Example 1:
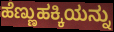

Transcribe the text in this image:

ಹೆಣ್ಣುಹಕ್ಕಿಯನ್ನು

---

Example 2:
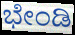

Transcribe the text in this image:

ಭೇಂಡಿ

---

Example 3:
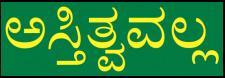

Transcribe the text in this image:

ಅಸ್ತಿತ್ವವಲ್ಲ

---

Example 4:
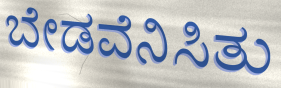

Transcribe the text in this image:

ಬೇಡವೆನಿಸಿತು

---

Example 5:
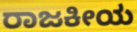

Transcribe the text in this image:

ರಾಜಕೀಯ